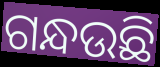
ଗନ୍ଧଉଛି